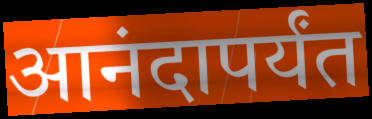
आनंदापर्यंत